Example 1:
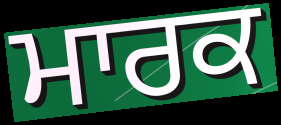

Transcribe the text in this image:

ਮਾਰਕ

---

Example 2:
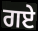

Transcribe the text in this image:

ਗਏ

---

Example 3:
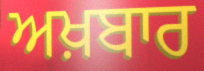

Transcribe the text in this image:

ਅਖ਼ਬਾਰ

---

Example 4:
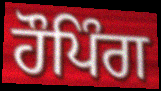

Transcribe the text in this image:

ਹੌਪਿੰਗ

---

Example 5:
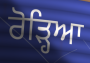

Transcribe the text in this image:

ਰੋੜ੍ਹਿਆ